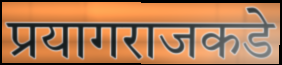
प्रयागराजकडे